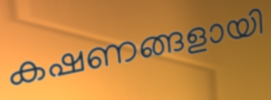
കഷണങ്ങളായി